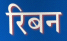
रिबन